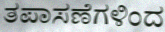
ತಪಾಸಣೆಗಳಿಂದ